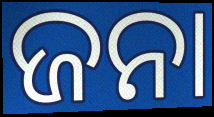
ଜନା